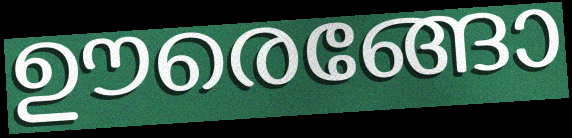
ഊരെങ്ങോ